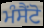
ਮੰਸੈਂਟੋ